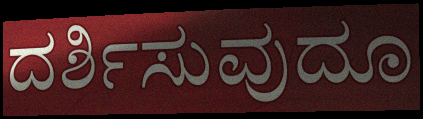
ದರ್ಶಿಸುವುದೂ